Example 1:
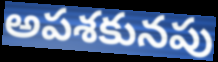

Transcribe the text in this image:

అపశకునపు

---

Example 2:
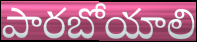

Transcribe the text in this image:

పారబోయాలి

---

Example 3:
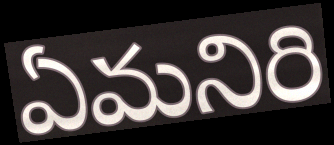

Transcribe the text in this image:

ఏమనిరి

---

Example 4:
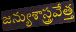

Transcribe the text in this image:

జన్యుశాస్త్రవేత్త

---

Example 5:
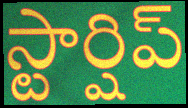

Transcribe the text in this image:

స్టార్షిప్